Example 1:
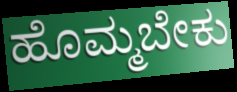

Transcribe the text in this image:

ಹೊಮ್ಮಬೇಕು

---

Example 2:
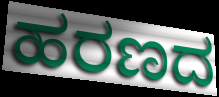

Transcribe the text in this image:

ಹರಣದ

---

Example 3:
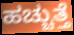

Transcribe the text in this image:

ಹಚ್ಚುತ್ತೆ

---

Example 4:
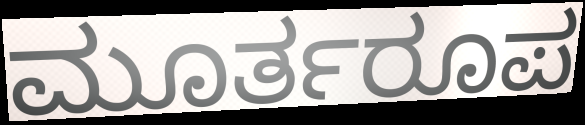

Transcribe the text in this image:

ಮೂರ್ತರೂಪ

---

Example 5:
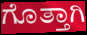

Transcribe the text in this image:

ಗೊತ್ತಾಗಿ